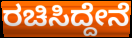
ರಚಿಸಿದ್ದೇನೆ